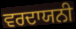
ਵਰਦਾਯਨੀ